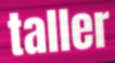
taller